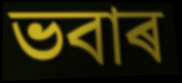
ভবাৰ